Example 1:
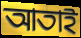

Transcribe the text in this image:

আতাই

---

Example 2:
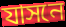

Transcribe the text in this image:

যাসনে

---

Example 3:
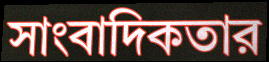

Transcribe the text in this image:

সাংবাদিকতার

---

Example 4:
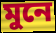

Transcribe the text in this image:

মুনে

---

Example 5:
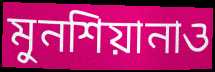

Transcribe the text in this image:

মুনশিয়ানাও